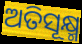
ଅତିସୂକ୍ଷ୍ମ